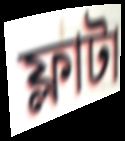
ফ্লাটা